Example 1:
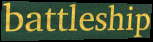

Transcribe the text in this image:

battleship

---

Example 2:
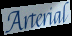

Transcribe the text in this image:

Arterial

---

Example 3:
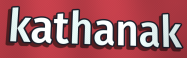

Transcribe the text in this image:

kathanak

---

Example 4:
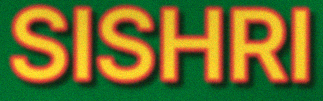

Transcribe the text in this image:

SISHRI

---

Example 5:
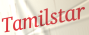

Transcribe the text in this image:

Tamilstar